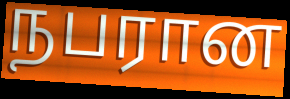
நபரான